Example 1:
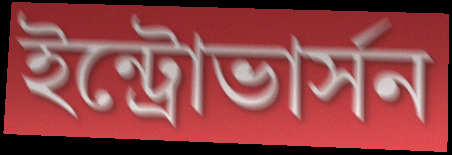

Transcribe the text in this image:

ইন্ট্রোভার্সন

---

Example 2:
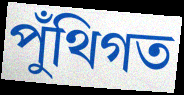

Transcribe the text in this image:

পুঁথিগত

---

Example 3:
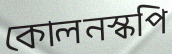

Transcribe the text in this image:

কোলনস্কপি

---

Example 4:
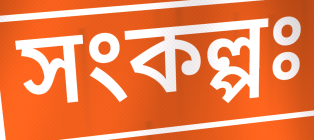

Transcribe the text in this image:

সংকল্পঃ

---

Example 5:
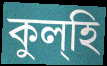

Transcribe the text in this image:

কুল্হি